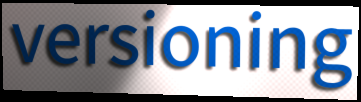
versioning